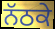
ਨੱਠਕੇ